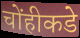
चोंहीकडे